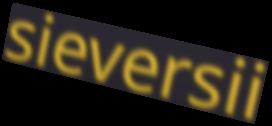
sieversii